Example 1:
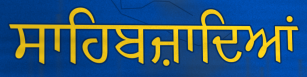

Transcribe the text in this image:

ਸਾਹਿਬਜ਼ਾਦਿਆਂ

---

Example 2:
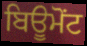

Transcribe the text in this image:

ਬਿਊਮੋਂਟ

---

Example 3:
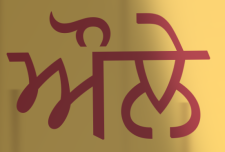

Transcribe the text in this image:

ਔਲੇ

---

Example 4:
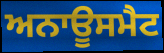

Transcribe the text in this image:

ਅਨਾਊਸਮੈਟ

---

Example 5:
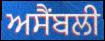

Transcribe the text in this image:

ਅਸੈਂਬਲੀ